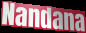
Nandana